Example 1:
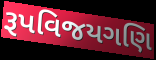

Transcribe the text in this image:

રૂપવિજયગણિ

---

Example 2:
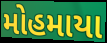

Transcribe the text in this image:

મોહમાયા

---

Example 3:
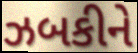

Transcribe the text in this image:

ઝબકીને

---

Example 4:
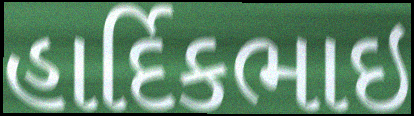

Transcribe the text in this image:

હાર્દિકભાઇ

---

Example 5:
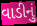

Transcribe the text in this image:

વાડીનું